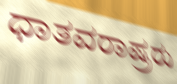
ಧಾತವರಾಷ್ರರು